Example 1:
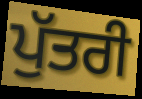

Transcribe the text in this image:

ਪੁੱਤਰੀ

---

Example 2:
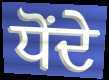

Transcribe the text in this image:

ਧੋਂਦੇ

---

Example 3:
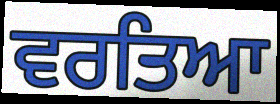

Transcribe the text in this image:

ਵਰਤਿਆ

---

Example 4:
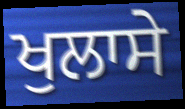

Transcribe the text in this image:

ਖੁਲਾਸੇ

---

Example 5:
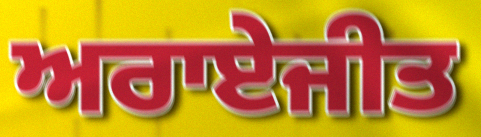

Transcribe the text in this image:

ਅਰਾਏਜੀਤ